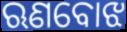
ଋଣବୋଝ